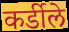
कर्डीले